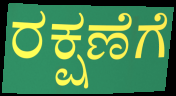
ರಕ್ಷಣೆಗೆ